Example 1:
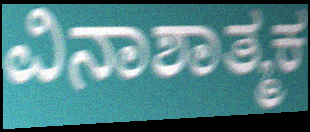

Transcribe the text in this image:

ವಿನಾಶಾತ್ಮಕ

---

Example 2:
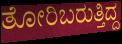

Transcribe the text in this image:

ತೋರಿಬರುತ್ತಿದ್ದ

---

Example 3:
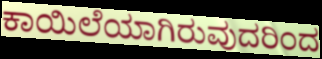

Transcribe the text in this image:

ಕಾಯಿಲೆಯಾಗಿರುವುದರಿಂದ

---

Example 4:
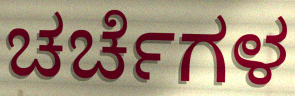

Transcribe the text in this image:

ಚರ್ಚೆಗಳ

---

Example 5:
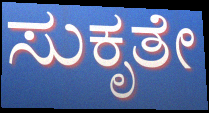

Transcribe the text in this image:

ಸುಕೃತೇ